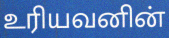
உரியவனின்